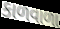
કાળવાળા